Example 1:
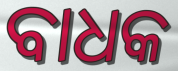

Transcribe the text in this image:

ବାଧକ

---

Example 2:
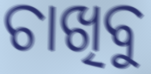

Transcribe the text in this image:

ଚାଖିବୁ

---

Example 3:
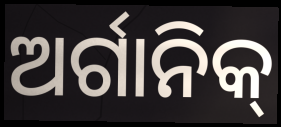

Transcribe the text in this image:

ଅର୍ଗାନିକ୍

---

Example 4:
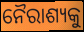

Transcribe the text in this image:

ନୈରାଶ୍ୟକୁ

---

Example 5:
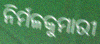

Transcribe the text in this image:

ନିର୍ମଳକୁମାରୀ